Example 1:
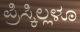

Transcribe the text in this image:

ಪ್ರಿಸ್ಕಿಲ್ಲಳೂ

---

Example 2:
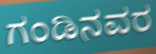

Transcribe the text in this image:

ಗಂಡಿನವರ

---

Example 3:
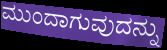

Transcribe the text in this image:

ಮುಂದಾಗುವುದನ್ನು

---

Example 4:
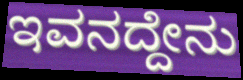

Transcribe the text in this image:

ಇವನದ್ದೇನು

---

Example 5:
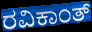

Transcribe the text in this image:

ರವಿಕಾಂತ್